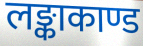
लङ्काकाण्ड